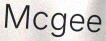
Mcgee